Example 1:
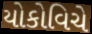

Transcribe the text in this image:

યોકોવિચે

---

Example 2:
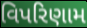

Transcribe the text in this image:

વિપરિણામ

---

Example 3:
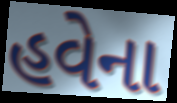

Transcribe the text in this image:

હવેના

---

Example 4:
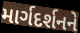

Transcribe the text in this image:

માર્ગદર્શનને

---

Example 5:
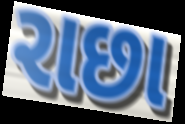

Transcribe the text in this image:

રાછા